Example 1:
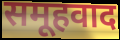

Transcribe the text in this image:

समूहवाद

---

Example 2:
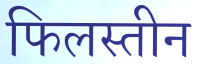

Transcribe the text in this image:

फिलस्तीन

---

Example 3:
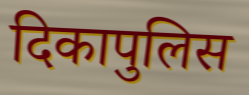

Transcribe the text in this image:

दिकापुलिस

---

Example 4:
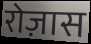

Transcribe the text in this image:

रोज़ास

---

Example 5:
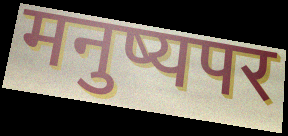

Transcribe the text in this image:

मनुष्यपर